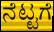
ನೆಟ್ಟಗೆ